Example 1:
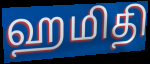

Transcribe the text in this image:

ஹமிதி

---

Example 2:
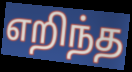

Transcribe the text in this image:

எறிந்த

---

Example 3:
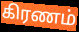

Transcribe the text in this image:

கிரணம்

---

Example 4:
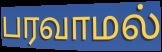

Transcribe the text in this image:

பரவாமல்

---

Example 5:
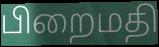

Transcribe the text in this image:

பிறைமதி